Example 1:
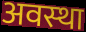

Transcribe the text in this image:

अवस्‍था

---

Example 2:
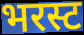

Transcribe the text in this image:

भरस्ट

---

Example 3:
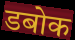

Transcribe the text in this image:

डबोक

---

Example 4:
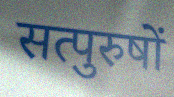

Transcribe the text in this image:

सत्पुरुषों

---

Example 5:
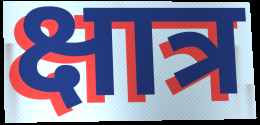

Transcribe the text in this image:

क्षात्र